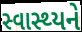
સ્વાસ્થ્યને